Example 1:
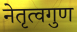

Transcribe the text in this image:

नेतृत्वगुण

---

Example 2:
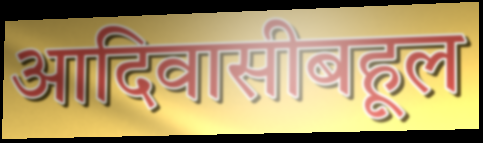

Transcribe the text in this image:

आदिवासीबहूल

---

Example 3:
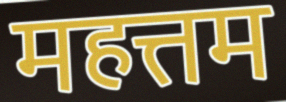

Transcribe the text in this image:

महत्तम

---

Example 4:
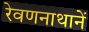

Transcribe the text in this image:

रेवणनाथानें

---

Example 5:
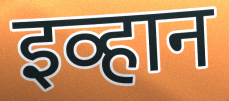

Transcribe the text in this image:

इव्हान